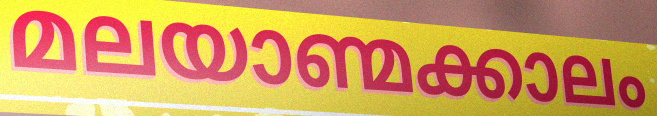
മലയാണ്മക്കാലം